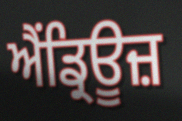
ਐਂਡ੍ਰਿਊਜ਼